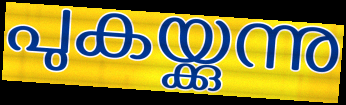
പുകയ്ക്കുന്നു